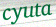
cyuta